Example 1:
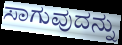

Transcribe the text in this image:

ಸಾಗುವುದನ್ನು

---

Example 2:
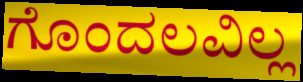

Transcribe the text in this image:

ಗೊಂದಲವಿಲ್ಲ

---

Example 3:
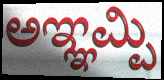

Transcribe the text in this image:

ಅಞ್ಞಮ್ಪಿ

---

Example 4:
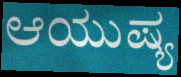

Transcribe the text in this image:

ಆಯುಷ್ಯ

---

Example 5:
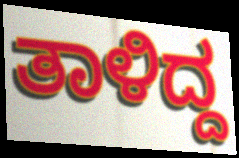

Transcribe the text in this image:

ತಾಳಿದ್ದ